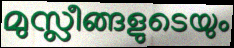
മുസ്ലീങ്ങളുടെയും